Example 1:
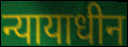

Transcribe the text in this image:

न्यायाधीन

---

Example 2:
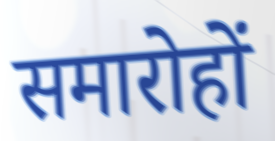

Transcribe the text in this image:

समारोहों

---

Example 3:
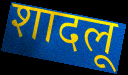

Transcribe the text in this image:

शादलू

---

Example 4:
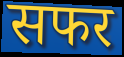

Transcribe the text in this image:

सफर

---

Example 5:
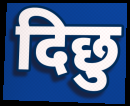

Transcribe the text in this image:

दिछु